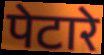
पेटारे